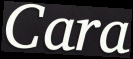
Cara